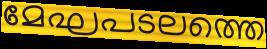
മേഘപടലത്തെ